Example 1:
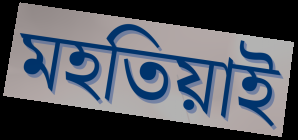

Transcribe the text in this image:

মহতিয়াই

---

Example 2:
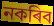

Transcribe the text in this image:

নকৰিব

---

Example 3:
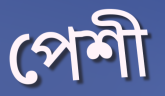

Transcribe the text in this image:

পেশী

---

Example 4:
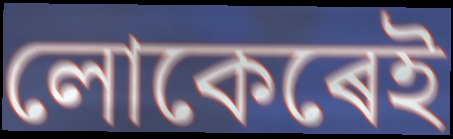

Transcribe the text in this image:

লোকেৰেই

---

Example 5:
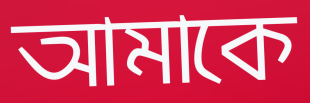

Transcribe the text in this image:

আমাকে